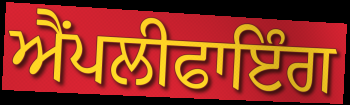
ਐਂਪਲੀਫਾਇੰਗ